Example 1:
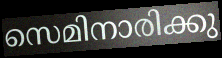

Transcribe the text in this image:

സെമിനാരിക്കു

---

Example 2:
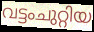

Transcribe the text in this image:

വട്ടംചുറ്റിയ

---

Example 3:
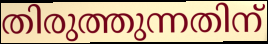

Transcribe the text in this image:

തിരുത്തുന്നതിന്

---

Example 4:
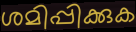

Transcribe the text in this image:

ശമിപ്പിക്കുക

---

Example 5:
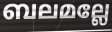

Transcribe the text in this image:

ബലമല്ലേ